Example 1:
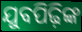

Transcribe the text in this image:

ଯୁବପିଢ଼ିଙ୍କ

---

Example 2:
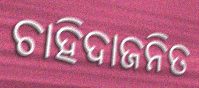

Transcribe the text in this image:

ଚାହିଦାଜନିତ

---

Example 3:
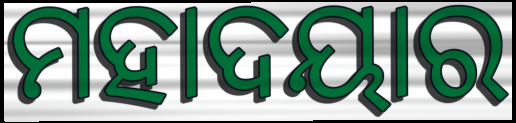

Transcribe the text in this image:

ମହାଦୟାର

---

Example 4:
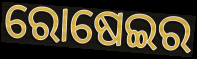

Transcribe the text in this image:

ରୋଷେଇର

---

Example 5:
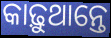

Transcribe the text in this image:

କାଢ଼ୁଥାନ୍ତେ